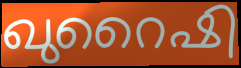
ഖുറൈഷി